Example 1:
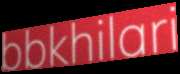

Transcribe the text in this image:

bbkhilari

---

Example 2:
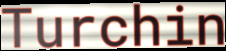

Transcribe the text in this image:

Turchin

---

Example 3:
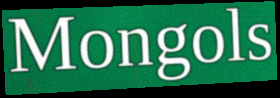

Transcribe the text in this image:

Mongols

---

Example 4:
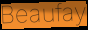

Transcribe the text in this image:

Beaufay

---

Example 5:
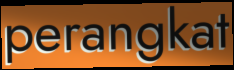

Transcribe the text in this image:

perangkat